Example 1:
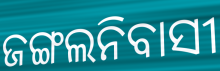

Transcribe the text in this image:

ଜଙ୍ଗଲନିବାସୀ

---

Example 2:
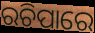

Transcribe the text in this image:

ରଚିପାରେ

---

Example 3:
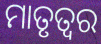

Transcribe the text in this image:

ମାତୃତ୍ୱର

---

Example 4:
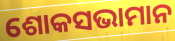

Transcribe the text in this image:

ଶୋକସଭାମାନ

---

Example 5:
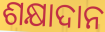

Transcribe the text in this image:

ଶକ୍ଷାଦାନ